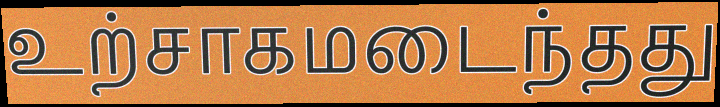
உற்சாகமடைந்தது